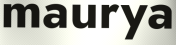
maurya